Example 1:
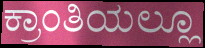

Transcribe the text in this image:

ಕ್ರಾಂತಿಯಲ್ಲೂ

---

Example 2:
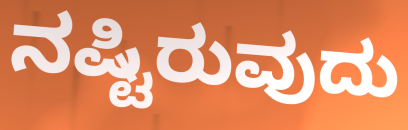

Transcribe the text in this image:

ನಷ್ಟಿರುವುದು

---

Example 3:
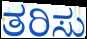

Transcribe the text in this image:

ತರಿಸು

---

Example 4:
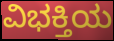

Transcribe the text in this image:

ವಿಭಕ್ತಿಯ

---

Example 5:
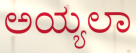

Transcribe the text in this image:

ಅಯ್ಯಲಾ